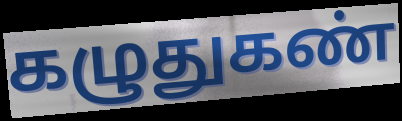
கழுதுகண்